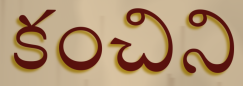
కంచిని